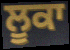
ਲੂਕਾ